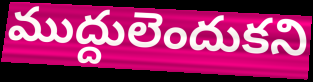
ముద్దులెందుకని